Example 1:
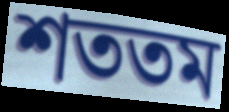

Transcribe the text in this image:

শততম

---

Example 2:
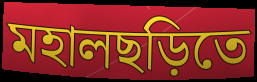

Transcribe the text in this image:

মহালছড়িতে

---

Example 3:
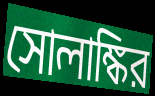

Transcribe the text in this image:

সোলাঙ্কির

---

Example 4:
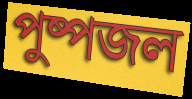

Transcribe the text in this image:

পুষ্পজল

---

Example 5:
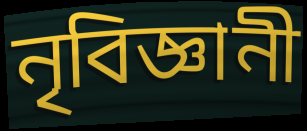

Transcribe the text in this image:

নৃবিজ্ঞানী